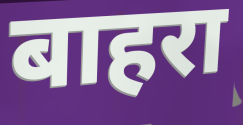
बाहरा